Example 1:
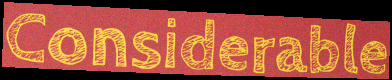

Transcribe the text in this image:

Considerable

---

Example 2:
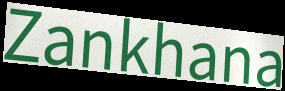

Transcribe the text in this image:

Zankhana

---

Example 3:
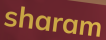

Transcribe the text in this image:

sharam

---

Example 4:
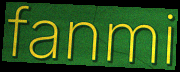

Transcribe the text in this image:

fanmi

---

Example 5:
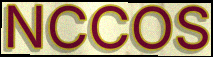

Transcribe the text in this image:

NCCOS